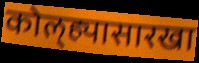
कोल्ह्यासारखा